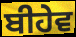
ਬੀਹੇਵ